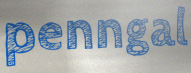
penngal